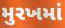
મુરખમાં